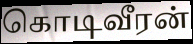
கொடிவீரன்